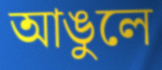
আঙুলে